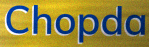
Chopda